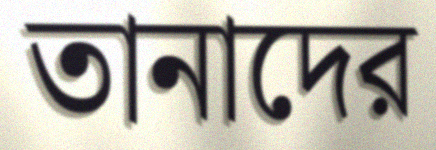
তানাদের